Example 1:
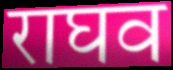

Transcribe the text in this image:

राघव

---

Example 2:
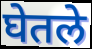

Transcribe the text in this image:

घेतले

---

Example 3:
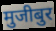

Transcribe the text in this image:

मुजीबुर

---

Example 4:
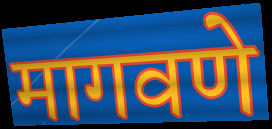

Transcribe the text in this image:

मागवणे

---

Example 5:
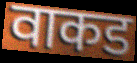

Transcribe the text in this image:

वाकड